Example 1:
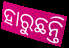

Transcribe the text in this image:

ହାରୁଛନ୍ତି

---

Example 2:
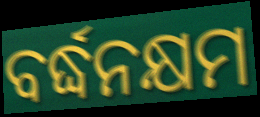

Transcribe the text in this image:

ବର୍ଦ୍ଧନକ୍ଷମ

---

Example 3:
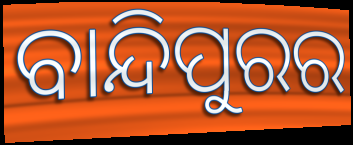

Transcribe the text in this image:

ବାନ୍ଦିପୁରର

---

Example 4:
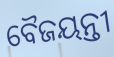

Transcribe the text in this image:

ବୈଜୟନ୍ତୀ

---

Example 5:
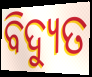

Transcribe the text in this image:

ବିଦ୍ଯୁତ